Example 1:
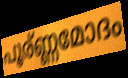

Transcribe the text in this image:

പൂര്ണ്ണമോദം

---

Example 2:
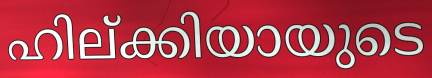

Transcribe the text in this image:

ഹില്ക്കിയായുടെ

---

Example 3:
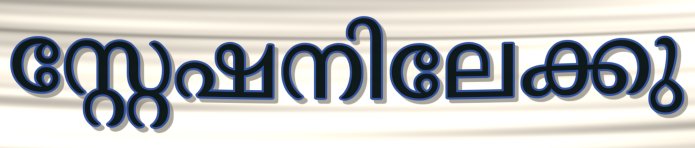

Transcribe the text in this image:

സ്റ്റേഷനിലേക്കു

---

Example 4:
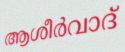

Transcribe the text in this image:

ആശീർവാദ്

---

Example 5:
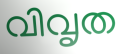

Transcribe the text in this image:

വിവൃത